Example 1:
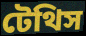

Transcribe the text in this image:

টেথিস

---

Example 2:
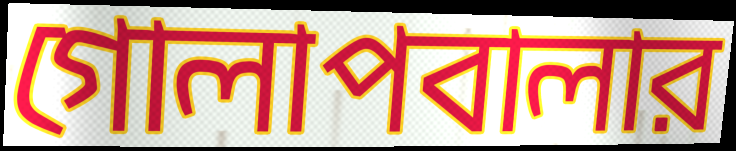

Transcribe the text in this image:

গোলাপবালার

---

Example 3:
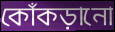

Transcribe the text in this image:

কোঁকড়ানো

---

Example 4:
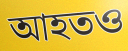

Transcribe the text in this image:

আহতও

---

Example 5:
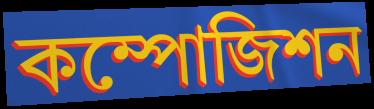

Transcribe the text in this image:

কম্পোজিশন